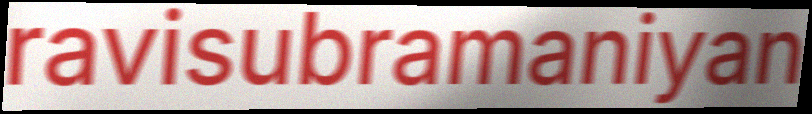
ravisubramaniyan